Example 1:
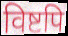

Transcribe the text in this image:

विष्टपि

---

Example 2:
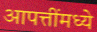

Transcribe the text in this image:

आपत्तींमध्ये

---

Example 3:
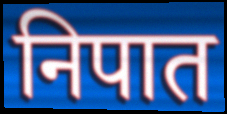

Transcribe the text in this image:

निपात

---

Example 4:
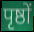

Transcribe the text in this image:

पृष्ठों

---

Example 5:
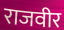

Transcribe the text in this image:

राजवीर